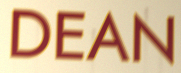
DEAN